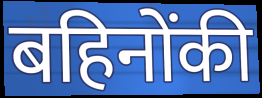
बहिनोंकी